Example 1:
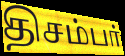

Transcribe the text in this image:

திசம்பர்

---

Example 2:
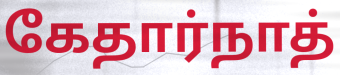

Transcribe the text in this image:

கேதார்நாத்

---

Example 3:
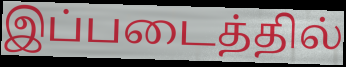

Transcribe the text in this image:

இப்படைத்தில்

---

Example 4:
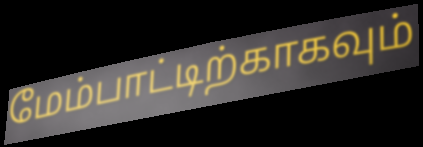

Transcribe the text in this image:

மேம்பாட்டிற்காகவும்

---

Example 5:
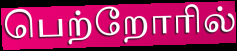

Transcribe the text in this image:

பெற்றோரில்